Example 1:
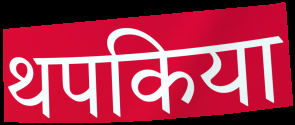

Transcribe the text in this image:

थपकिया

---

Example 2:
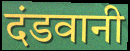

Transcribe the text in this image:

दंडवानी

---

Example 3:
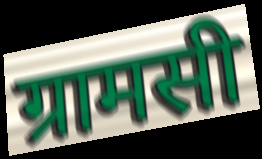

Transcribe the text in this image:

ग्रामसी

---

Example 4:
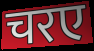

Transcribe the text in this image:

चरए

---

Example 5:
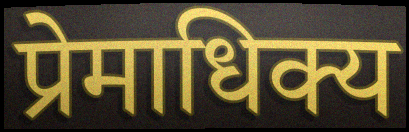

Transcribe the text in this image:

प्रेमाधिक्य